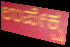
ಉಪೇಕ್ಷ